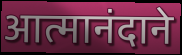
आत्मानंदाने